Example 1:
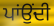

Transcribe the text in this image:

ਪਾਂਉਂਦੀ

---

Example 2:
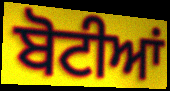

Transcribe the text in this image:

ਬੋਟੀਆਂ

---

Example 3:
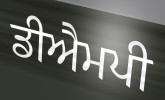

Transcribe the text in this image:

ਡੀਐਮਪੀ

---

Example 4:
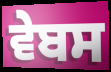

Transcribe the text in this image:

ਵੇਬਸ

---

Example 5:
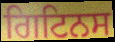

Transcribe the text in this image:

ਗਿਟਿਨਸ